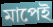
মাপেই